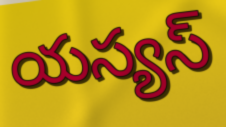
యస్యస్